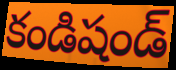
కండిషండ్